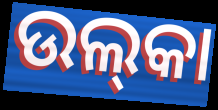
ଉଲ୍‍କା